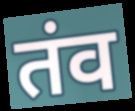
तंव